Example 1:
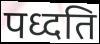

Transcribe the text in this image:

पध्दति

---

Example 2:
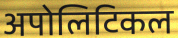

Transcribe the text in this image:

अपोलिटिकल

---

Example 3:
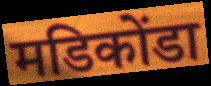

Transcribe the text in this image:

मडिकोंडा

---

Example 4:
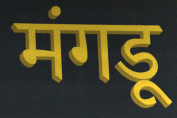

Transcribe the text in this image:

मंगडू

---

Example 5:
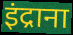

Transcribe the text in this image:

इंद्राना